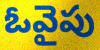
ఓవైపు